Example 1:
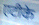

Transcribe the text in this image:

एटीके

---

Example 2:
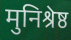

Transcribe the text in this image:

मुनिश्रेष्ठ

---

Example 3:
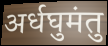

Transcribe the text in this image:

अर्धघुमंतु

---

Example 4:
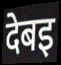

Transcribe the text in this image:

देबइ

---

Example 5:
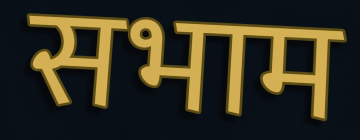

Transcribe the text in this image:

सभाम